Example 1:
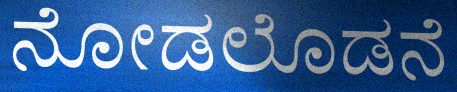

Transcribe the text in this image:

ನೋಡಲೊಡನೆ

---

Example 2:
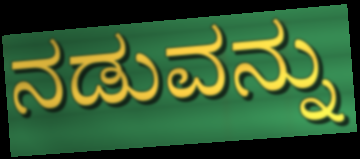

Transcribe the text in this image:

ನಡುವನ್ನು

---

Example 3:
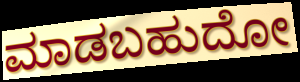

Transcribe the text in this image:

ಮಾಡಬಹುದೋ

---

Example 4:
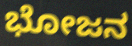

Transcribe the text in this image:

ಭೋಜನ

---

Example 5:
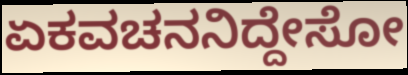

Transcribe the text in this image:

ಏಕವಚನನಿದ್ದೇಸೋ